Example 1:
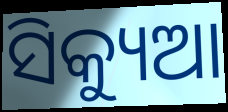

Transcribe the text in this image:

ସିକ୍ୟୁଆ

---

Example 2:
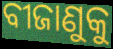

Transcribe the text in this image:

ବୀଜାଣୁକୁ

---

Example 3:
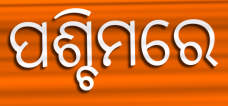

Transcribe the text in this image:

ପଶ୍ଚିମରେ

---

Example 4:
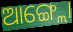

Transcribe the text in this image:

ଆଙ୍ଗ୍ଲୋ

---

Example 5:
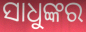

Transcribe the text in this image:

ସାଧୁଙ୍କର